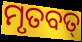
ମୃତବତ୍